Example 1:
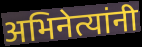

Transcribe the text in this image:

अभिनेत्यांनी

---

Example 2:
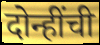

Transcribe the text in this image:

दोन्हींची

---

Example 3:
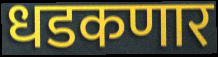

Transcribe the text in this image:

धडकणार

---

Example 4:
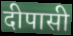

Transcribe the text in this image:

दीपासी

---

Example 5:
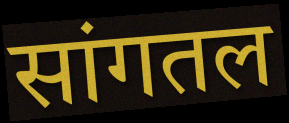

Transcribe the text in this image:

सांगतल